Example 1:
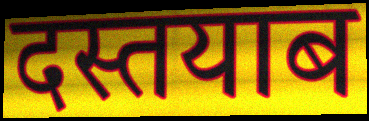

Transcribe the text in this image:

दस्तयाब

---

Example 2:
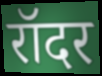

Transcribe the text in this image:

रॉदर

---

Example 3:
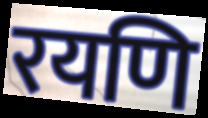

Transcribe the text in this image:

रयणि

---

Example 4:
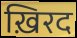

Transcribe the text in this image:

ख़िरद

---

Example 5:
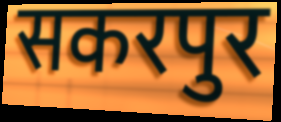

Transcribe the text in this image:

सकरपुर